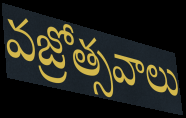
వజ్రోత్సవాలు